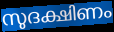
സുദക്ഷിണം